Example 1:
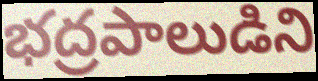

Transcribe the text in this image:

భద్రపాలుడిని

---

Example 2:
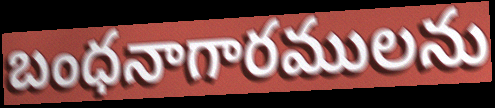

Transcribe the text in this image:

బంధనాగారములను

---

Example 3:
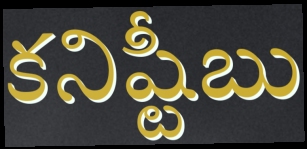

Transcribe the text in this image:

కనిష్టీబు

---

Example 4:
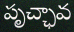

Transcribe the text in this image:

పృచ్ఛావ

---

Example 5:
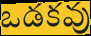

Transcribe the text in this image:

ఒడకవు